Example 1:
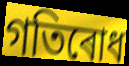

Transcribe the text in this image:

গতিৰোধ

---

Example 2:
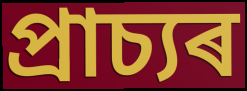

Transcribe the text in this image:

প্ৰাচ্যৰ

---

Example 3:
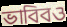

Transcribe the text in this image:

ভাবিবও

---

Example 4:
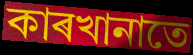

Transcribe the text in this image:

কাৰখানাতে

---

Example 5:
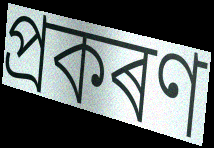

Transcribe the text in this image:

প্ৰকৰণ